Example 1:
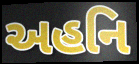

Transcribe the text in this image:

અહનિ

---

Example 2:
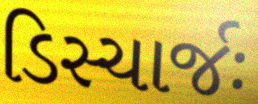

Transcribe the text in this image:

ડિસ્ચાર્જઃ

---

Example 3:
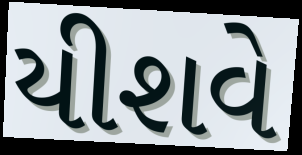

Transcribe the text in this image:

યીશવે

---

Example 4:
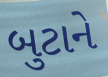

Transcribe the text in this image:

બુટાને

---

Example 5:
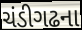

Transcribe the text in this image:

ચંડીગઢના